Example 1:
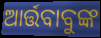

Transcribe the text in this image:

ଆର୍ତ୍ତବାବୁଙ୍କ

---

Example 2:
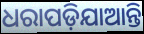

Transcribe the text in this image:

ଧରାପଡ଼ିଯାଆନ୍ତି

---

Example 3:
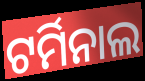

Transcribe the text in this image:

ଟର୍ମିନାଲ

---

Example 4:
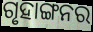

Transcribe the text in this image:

ଗୃହାଙ୍ଗନର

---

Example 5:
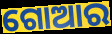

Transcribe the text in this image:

ଗୋଆର